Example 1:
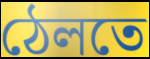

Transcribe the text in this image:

ঠেলতে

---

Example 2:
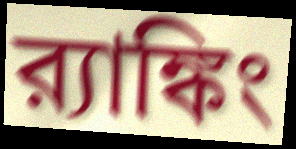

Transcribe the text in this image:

র‍্যাঙ্কিং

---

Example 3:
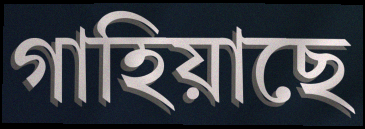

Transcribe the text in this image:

গাহিয়াছে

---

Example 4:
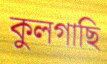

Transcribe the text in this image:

কুলগাছি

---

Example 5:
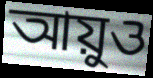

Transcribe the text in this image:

আয়ুও